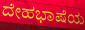
ದೇಹಭಾಷೆಯ